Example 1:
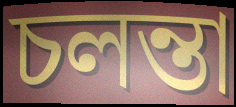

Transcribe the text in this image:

চলন্তা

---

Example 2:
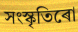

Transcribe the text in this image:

সংস্কৃতিৰো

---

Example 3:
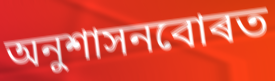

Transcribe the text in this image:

অনুশাসনবোৰত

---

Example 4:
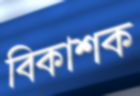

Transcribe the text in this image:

বিকাশক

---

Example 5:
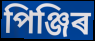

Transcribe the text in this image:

পিঞ্জিৰ